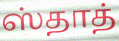
ஸ்தாத்